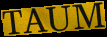
TAUM